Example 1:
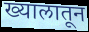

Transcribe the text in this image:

ख्यालातून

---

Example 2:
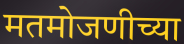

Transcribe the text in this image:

मतमोजणीच्या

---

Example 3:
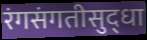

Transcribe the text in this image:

रंगसंगतीसुद्धा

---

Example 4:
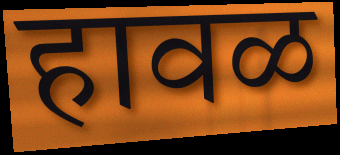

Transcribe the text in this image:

हावळ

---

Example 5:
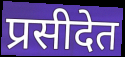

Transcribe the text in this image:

प्रसीदेत